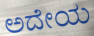
ಅದೇಯ